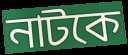
নাটকে